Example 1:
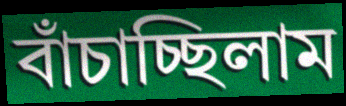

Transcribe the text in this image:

বাঁচাচ্ছিলাম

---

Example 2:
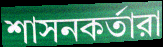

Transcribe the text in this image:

শাসনকর্তারা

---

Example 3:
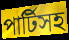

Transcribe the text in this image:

পার্টিসহ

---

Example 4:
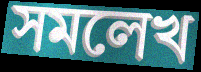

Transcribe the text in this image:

সমলেখ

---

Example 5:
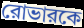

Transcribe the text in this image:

রোভারকে